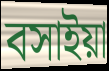
বসাইয়া